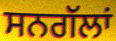
ਸਨਗੱਲਾਂ